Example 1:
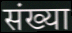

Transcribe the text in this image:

संख्या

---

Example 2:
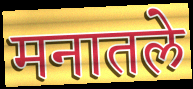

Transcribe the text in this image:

मनातले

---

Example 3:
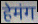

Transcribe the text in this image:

हेमंग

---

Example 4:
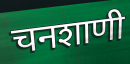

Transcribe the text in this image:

चनशाणी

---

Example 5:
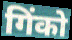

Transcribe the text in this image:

गिंको